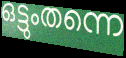
ഒട്ടുംതന്നെ